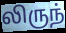
லிருந்